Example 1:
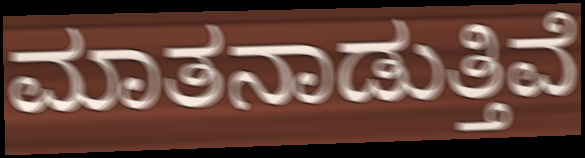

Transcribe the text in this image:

ಮಾತನಾಡುತ್ತಿವೆ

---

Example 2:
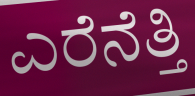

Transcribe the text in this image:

ಎರೆನೆತ್ತಿ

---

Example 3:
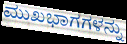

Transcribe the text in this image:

ಮುಖಭಾಗಗಳನ್ನು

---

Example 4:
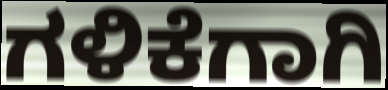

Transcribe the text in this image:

ಗಳಿಕೆಗಾಗಿ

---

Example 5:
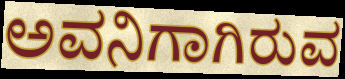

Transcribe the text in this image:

ಅವನಿಗಾಗಿರುವ